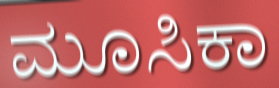
ಮೂಸಿಕಾ